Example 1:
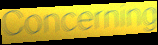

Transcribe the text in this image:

Concerning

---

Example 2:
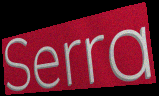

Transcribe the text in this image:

Serra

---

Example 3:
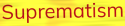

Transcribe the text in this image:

Suprematism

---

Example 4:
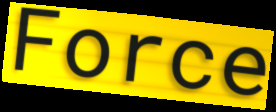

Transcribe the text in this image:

Force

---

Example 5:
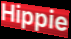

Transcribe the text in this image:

Hippie